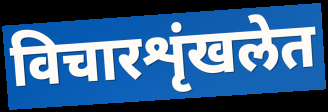
विचारशृंखलेत